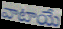
వాటాయే